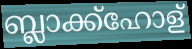
ബ്ലാക്ക്ഹോള്